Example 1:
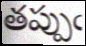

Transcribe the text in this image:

తప్పుఁ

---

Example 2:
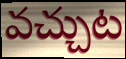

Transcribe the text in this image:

వచ్చుట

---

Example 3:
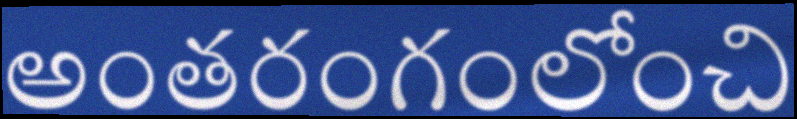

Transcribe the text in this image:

అంతరంగంలోంచి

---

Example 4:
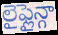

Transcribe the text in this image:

లైఫ్లైన్గా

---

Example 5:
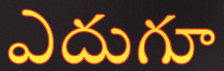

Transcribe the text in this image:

ఎదుగూ